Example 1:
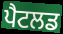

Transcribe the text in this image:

ਪੈਟਲਡ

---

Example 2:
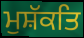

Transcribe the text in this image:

ਮੁਸ਼ੱਕਤਿ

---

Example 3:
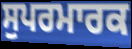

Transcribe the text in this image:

ਸੁਪਰਮਾਰਕ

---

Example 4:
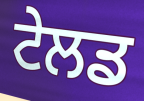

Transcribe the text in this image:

ਟੇਲਡ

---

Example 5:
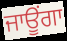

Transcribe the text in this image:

ਜਾਊਂਗਾ